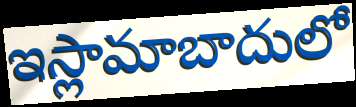
ఇస్లామాబాదులో